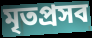
মৃতপ্রসব